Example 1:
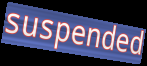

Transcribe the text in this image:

suspended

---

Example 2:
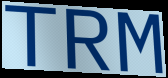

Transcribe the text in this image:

TRM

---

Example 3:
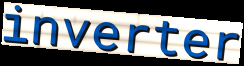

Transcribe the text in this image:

inverter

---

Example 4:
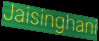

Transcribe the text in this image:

Jaisinghani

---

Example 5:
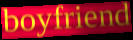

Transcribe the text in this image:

boyfriend